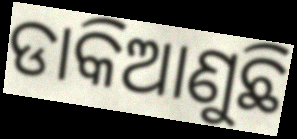
ଡାକିଆଣୁଛି